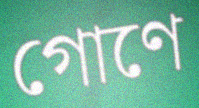
গোণে